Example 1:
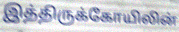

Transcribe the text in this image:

இத்திருக்கோயிலின்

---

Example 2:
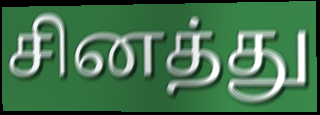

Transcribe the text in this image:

சினத்து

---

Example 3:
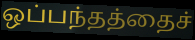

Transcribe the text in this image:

ஒப்பந்தத்தைச்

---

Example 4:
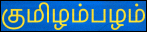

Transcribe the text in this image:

குமிழம்பழம்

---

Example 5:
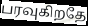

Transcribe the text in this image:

பரவுகிறதே